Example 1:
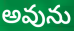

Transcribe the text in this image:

అవును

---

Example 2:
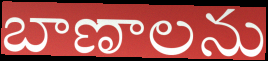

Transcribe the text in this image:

బాణాలను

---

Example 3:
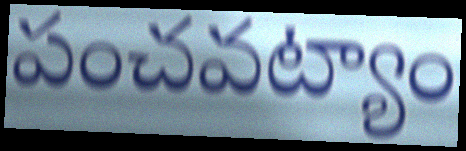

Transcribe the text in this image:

పంచవట్యాం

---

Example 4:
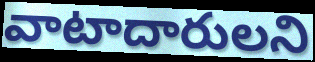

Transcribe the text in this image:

వాటాదారులని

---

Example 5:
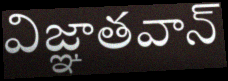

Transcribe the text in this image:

విజ్ఞాతవాన్